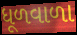
ધૂળવાળા